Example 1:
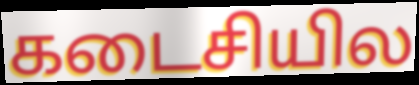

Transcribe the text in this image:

கடைசியில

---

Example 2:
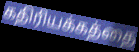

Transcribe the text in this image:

கதிரியக்கத்தை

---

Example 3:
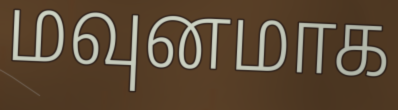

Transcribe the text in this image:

மவுனமாக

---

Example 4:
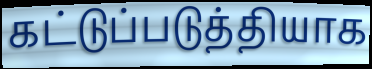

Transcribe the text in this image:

கட்டுப்படுத்தியாக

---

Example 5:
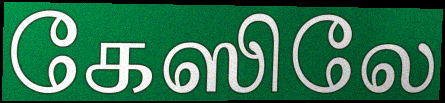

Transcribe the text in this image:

கேஸிலே